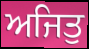
ਅਜਿਤੁ